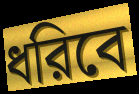
ধরিবে